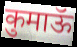
कुमाऊॅ